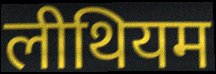
लीथियम